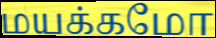
மயக்கமோ